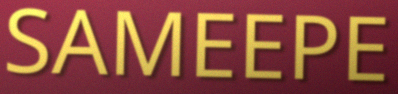
SAMEEPE